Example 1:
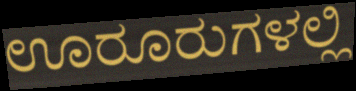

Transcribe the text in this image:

ಊರೂರುಗಳಲ್ಲಿ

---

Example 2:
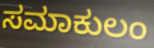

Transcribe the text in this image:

ಸಮಾಕುಲಂ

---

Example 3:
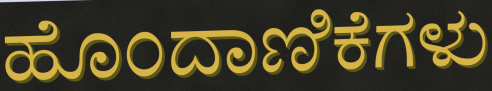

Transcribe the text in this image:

ಹೊಂದಾಣಿಕೆಗಳು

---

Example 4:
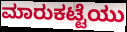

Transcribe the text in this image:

ಮಾರುಕಟ್ಟೆಯು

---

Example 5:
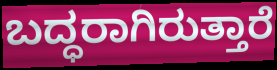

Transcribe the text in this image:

ಬದ್ಧರಾಗಿರುತ್ತಾರೆ